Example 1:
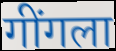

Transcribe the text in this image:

गींगला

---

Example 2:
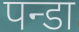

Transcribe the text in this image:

पन्डा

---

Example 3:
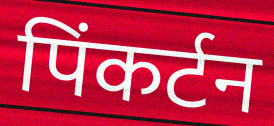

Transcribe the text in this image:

पिंकर्टन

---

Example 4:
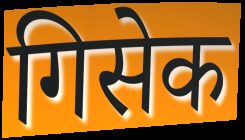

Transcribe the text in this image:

गिसेक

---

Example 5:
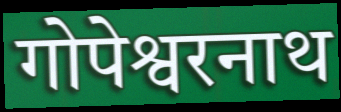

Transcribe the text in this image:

गोपेश्वरनाथ